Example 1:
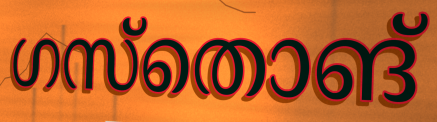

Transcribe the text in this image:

ഗസ്തൊങ്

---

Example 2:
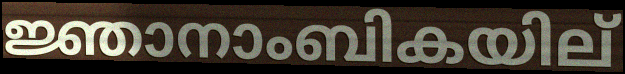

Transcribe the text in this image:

ജ്ഞാനാംബികയില്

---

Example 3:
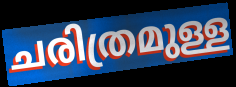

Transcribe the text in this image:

ചരിത്രമുള്ള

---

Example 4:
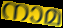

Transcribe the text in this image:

നാമ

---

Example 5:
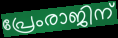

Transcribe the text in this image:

പ്രേംരാജിന്